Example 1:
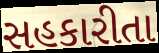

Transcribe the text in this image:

સહકારીતા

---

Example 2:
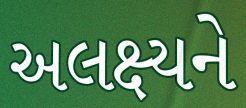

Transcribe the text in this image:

અલક્ષ્યને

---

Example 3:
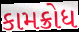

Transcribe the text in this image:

કામક્રોધ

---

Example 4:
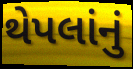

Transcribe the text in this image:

થેપલાંનું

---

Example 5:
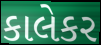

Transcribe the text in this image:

કાલેકર